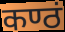
कण्ठं